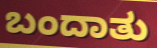
ಬಂದಾತು